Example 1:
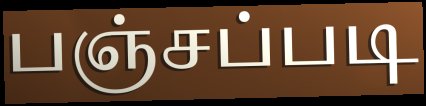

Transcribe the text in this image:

பஞ்சப்படி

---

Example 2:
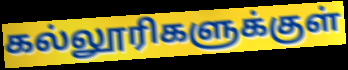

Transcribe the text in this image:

கல்லூரிகளுக்குள்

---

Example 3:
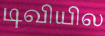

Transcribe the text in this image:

டிவியில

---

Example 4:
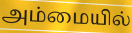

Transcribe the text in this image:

அம்மையில்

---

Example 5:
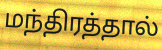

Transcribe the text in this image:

மந்திரத்தால்